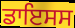
ਡਾਇਸਸ